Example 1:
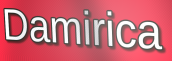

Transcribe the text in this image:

Damirica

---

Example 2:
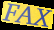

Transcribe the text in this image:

FAX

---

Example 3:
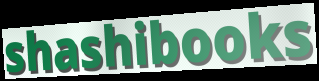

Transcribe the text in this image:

shashibooks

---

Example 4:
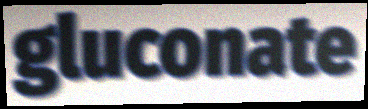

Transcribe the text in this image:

gluconate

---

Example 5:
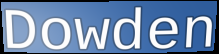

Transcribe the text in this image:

Dowden